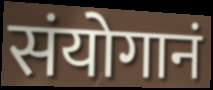
संयोगानं